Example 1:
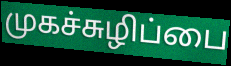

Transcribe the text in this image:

முகச்சுழிப்பை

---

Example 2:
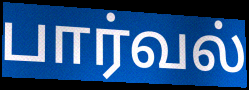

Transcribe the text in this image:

பார்வல்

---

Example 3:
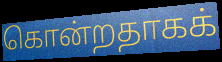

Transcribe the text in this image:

கொன்றதாகக்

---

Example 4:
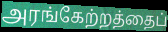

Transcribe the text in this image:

அரங்கேற்றத்தைப்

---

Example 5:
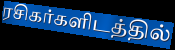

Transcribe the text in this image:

ரசிகர்களிடத்தில்